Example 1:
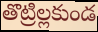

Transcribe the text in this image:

తొట్రిల్లకుండ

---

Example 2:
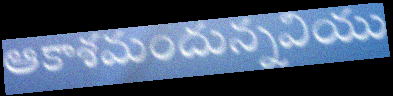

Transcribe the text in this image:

ఆకాశమందున్నవియు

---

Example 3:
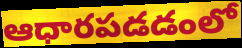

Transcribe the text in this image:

ఆధారపడడంలో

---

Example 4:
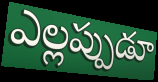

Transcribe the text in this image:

ఎల్లప్పుడూ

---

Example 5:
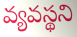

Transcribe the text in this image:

వ్యవస్థని